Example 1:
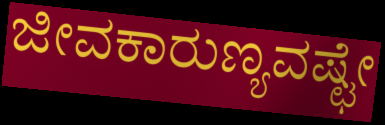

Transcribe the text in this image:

ಜೀವಕಾರುಣ್ಯವಷ್ಟೇ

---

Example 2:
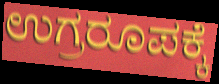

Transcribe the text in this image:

ಉಗ್ರರೂಪಕ್ಕೆ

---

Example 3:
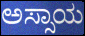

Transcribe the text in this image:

ಅಸ್ಸಾಯ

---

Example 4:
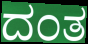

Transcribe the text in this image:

ದಂತ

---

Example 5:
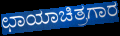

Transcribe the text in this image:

ಛಾಯಾಚಿತ್ರಗಾರ